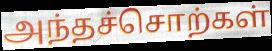
அந்தச்சொற்கள்